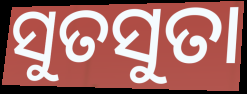
ସୁତସୁତା